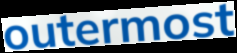
outermost